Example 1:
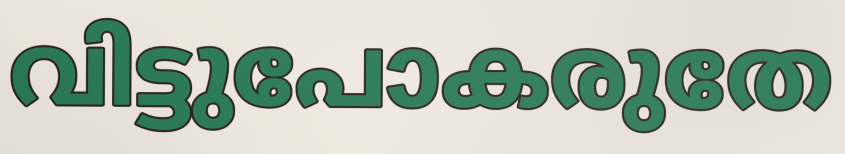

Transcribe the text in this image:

വിട്ടുപോകരുതേ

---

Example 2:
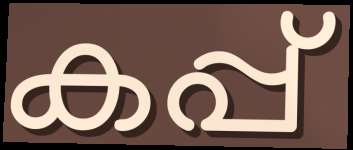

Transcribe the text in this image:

കപ്പ്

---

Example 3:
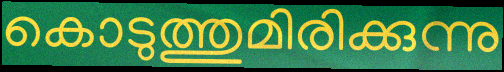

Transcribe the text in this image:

കൊടുത്തുമിരിക്കുന്നു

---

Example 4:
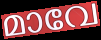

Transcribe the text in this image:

മാവേ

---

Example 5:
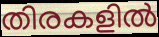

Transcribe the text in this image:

തിരകളിൽ